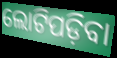
ଲୋଟିପଡ଼ିବା